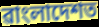
ৱাংলাদেশত